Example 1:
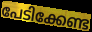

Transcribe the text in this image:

പേടിക്കേണ്ട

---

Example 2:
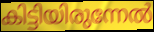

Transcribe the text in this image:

കിട്ടിയിരുന്നേൽ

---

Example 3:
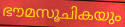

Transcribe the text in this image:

ഭൗമസൂചികയും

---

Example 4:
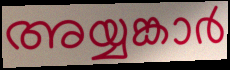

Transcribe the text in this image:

അയ്യങ്കാർ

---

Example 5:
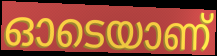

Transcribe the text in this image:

ഓടെയാണ്